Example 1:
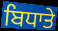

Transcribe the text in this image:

ਬਿਧਾਤੇ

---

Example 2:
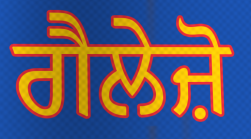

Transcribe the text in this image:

ਗੈਲੇਜ਼ੋ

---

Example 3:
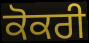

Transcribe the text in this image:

ਕੋਕਰੀ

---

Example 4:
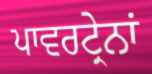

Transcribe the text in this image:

ਪਾਵਰਟ੍ਰੇਨਾਂ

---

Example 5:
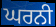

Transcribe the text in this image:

ਘਰਨੀ